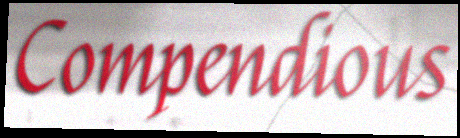
Compendious